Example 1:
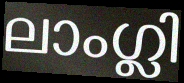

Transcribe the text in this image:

ലാംഗ്ലി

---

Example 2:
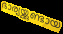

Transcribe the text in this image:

ഭാര്യയ്ക്കുണ്ടായ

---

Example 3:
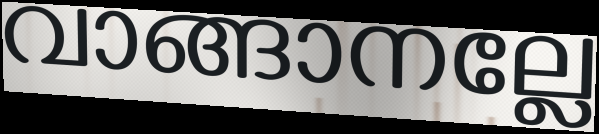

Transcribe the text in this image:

വാങ്ങാനല്ലേ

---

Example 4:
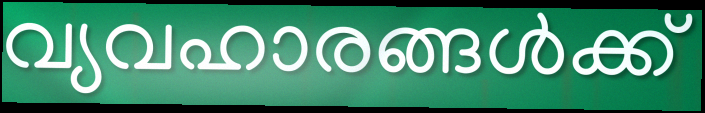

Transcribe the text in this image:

വ്യവഹാരങ്ങൾക്ക്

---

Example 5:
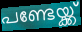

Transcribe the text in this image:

പണ്ടേയ്ക്ക്